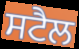
ਸਟੈਲ